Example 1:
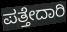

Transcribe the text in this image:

ಪತ್ತೇದಾರಿ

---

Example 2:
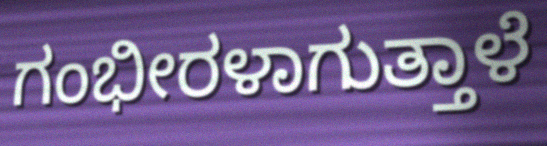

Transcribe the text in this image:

ಗಂಭೀರಳಾಗುತ್ತಾಳೆ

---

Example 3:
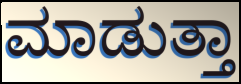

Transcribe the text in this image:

ಮಾಡುತ್ತಾ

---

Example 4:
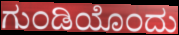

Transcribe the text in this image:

ಗುಂಡಿಯೊಂದು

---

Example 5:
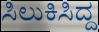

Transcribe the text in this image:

ಸಿಲುಕಿಸಿದ್ದ